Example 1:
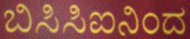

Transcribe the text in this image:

ಬಿಸಿಸಿಐನಿಂದ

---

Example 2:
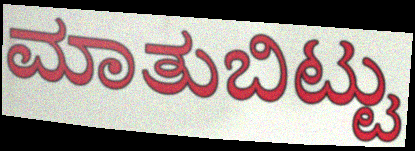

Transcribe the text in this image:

ಮಾತುಬಿಟ್ಟು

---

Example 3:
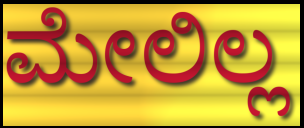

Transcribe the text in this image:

ಮೇಲಿಲ್ಲ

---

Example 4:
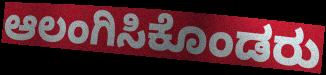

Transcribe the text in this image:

ಆಲಂಗಿಸಿಕೊಂಡರು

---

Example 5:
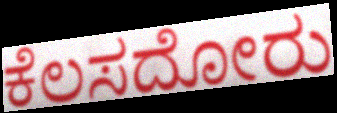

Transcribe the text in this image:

ಕೆಲಸದೋರು